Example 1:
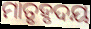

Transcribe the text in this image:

ମାତୃହୃଦୟ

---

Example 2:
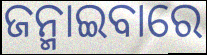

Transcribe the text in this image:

ଜନ୍ମାଇବାରେ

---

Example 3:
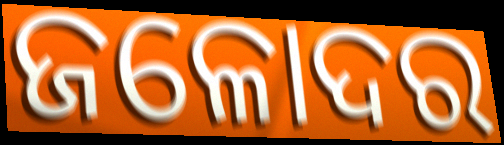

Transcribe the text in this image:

ଜଳୋଦର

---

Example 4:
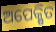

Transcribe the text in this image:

ଅପେକ୍ଷିତ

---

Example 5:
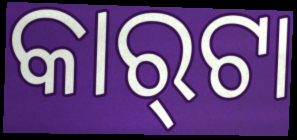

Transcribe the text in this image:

କାର୍‍ଟା